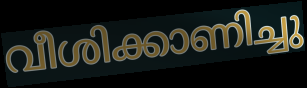
വീശിക്കാണിച്ചു